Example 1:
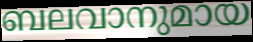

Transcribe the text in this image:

ബലവാനുമായ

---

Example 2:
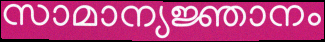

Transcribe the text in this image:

സാമാന്യജ്ഞാനം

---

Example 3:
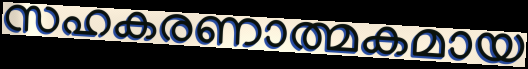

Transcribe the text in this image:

സഹകരണാത്മകമായ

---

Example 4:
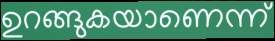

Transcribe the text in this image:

ഉറങ്ങുകയാണെന്ന്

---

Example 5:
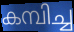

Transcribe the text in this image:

കമ്പിച്ച